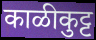
काळीकुट्ट